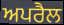
ਅਪਰੈਲ